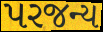
પરજન્ય